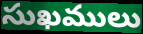
సుఖములు